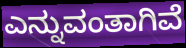
ಎನ್ನುವಂತಾಗಿವೆ